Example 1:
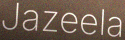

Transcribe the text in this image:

Jazeela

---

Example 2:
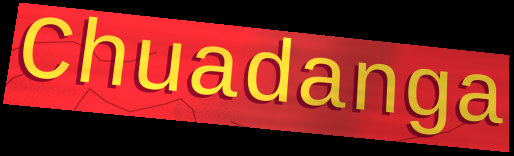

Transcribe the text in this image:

Chuadanga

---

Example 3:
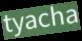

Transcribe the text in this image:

tyacha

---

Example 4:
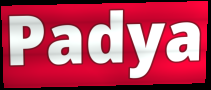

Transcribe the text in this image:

Padya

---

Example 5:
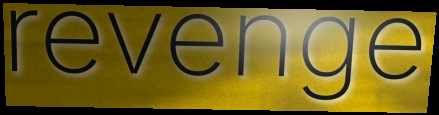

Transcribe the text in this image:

revenge